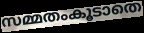
സമ്മതംകൂടാതെ